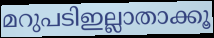
മറുപടിഇല്ലാതാക്കൂ